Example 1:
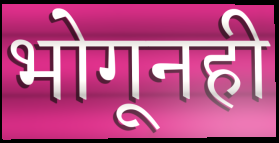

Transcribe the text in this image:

भोगूनही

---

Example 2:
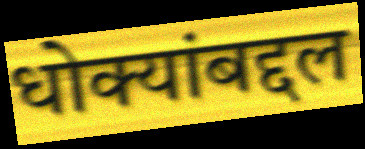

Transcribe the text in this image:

धोक्यांबद्दल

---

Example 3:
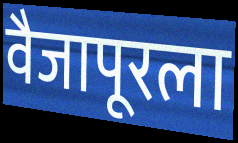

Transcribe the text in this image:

वैजापूरला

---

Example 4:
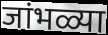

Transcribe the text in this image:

जांभळ्या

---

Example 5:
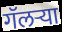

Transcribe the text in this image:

गॅलऱ्या